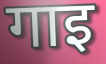
गाइ